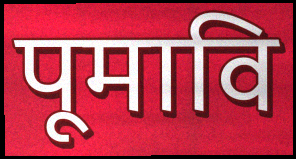
पूमावि